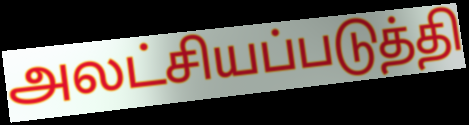
அலட்சியப்படுத்தி